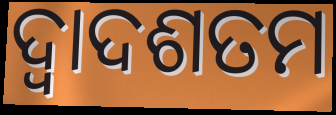
ଦ୍ୱାଦଶତମ